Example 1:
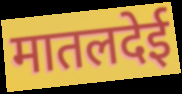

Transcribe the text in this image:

मातलदेई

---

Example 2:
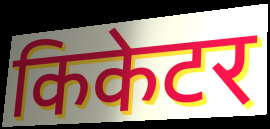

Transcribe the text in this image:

किकेटर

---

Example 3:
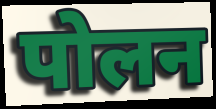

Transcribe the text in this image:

पोलन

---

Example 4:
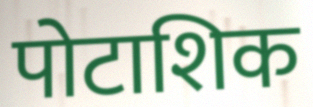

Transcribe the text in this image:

पोटाशिक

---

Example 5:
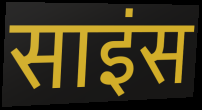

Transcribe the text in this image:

साइंस